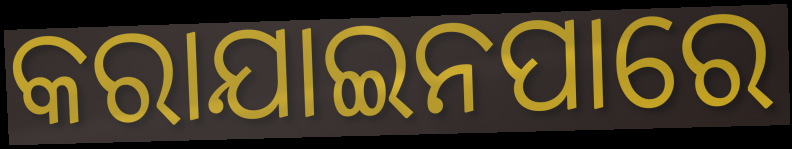
କରାଯାଇନପାରେ